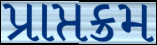
પ્રાપ્તક્રમ